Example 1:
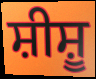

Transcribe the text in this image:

ਸ਼ੀਸ਼ੂ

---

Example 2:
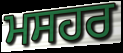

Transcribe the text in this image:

ਮਸਹਰ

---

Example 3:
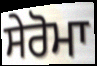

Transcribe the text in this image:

ਸੇਰੋਮਾ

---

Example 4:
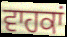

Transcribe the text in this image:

ਵਾਹਕਾਂ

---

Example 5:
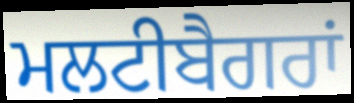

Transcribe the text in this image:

ਮਲਟੀਬੈਗਰਾਂ